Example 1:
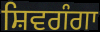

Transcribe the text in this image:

ਸ਼ਿਵਗੰਗਾ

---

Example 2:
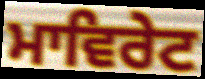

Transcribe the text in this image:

ਮਾਵਿਰੇਟ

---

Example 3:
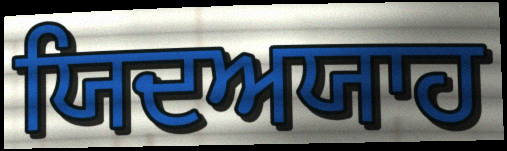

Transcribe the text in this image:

ਯਿਦਅਯਾਹ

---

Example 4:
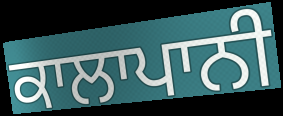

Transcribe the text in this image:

ਕਾਲਾਪਾਨੀ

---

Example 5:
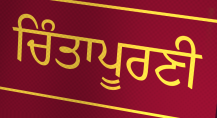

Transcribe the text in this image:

ਚਿੰਤਾਪੂਰਣੀ